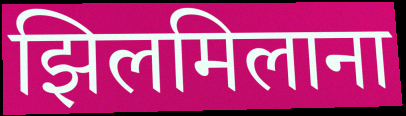
झिलमिलाना